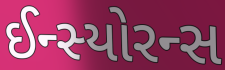
ઈન્સ્યોરન્સ